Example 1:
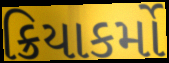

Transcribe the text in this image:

ક્રિયાકર્મો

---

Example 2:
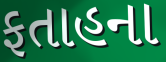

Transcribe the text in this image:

ફતાહના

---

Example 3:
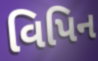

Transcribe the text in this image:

વિપિન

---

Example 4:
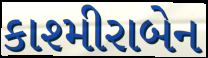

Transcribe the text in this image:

કાશ્મીરાબેન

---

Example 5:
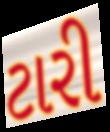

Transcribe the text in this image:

ટારી